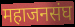
महाजनसंघ